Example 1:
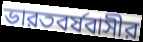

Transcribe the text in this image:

ভারতবর্ষবাসীর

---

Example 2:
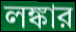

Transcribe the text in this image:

লঙ্কার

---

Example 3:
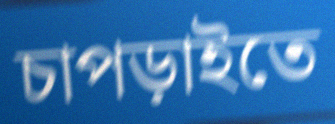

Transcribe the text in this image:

চাপড়াইতে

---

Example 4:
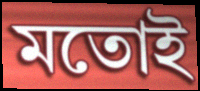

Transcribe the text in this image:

মতোই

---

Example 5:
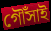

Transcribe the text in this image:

গৌঁসাই